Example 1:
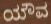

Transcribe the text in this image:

ಯೌವ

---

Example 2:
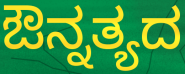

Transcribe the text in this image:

ಔನ್ನತ್ಯದ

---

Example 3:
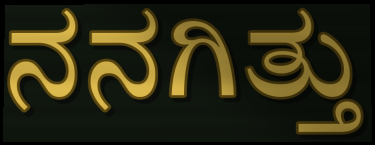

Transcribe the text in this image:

ನನಗಿತ್ತು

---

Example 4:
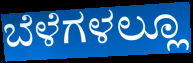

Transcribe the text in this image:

ಬೆಳೆಗಳಲ್ಲೂ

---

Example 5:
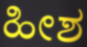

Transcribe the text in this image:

ಹೀಶ